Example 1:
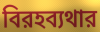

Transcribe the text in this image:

বিরহব্যথার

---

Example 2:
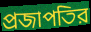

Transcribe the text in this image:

প্রজাপতির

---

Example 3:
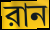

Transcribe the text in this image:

রান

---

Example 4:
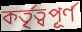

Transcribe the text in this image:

কর্তৃত্বপূর্ণ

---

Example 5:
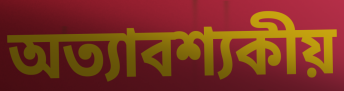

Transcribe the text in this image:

অত্যাবশ্যকীয়